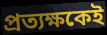
প্রত্যক্ষকেই